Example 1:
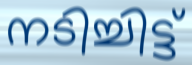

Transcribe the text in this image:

നടിച്ചിട്ട്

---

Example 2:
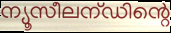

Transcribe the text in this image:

ന്യൂസീലന്ഡിന്റെ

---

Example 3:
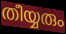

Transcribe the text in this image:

തീയ്യരും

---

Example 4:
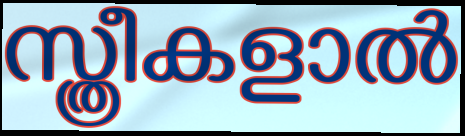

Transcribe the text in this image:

സ്ത്രീകളാൽ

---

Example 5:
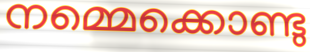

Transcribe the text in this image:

നമ്മെക്കൊണ്ടു